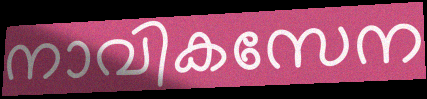
നാവികസേന